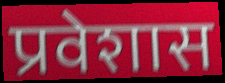
प्रवेशास